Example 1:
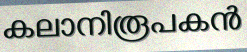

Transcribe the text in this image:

കലാനിരൂപകൻ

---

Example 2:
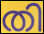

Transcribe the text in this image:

തി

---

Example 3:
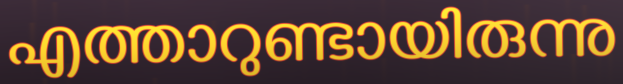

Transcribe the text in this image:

എത്താറുണ്ടായിരുന്നു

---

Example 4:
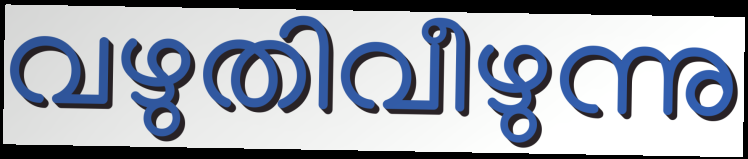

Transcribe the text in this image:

വഴുതിവീഴുന്നു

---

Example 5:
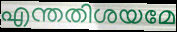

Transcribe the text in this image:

എന്തതിശയമേ